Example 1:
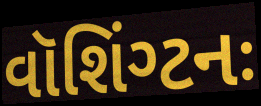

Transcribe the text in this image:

વૉશિંગ્ટનઃ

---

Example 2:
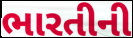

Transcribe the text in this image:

ભારતીની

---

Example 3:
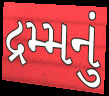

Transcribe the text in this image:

દ્રમ્મનું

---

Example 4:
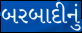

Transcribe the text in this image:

બરબાદીનું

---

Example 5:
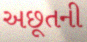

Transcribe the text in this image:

અછૂતની